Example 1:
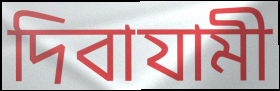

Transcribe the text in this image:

দিবাযামী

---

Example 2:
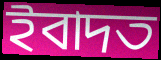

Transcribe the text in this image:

ইবাদত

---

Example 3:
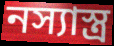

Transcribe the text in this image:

নস্যাস্ত্র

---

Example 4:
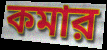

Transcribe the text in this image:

কমার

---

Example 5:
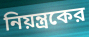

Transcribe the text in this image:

নিয়ন্ত্রকের